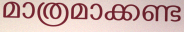
മാത്രമാക്കണ്ട